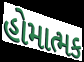
હોમાત્મક